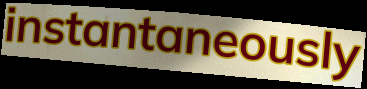
instantaneously